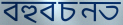
বহুবচনত